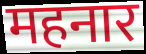
महनार